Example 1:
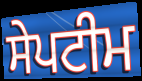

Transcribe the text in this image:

ਸੇਪਟੀਮ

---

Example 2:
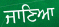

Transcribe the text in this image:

ਜਾਣਿਆ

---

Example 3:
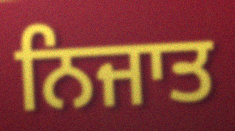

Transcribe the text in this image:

ਨਿਜਾਤ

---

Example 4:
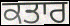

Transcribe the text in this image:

ਕਤਾਰ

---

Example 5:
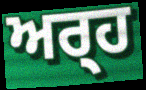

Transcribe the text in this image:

ਅਰ੍‍ਹ